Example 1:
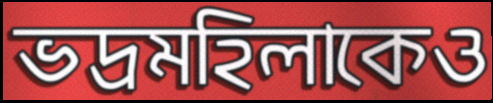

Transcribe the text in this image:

ভদ্রমহিলাকেও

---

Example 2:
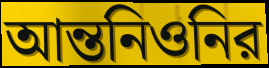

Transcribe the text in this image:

আন্তনিওনির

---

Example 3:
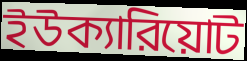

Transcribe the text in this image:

ইউক্যারিয়োট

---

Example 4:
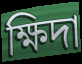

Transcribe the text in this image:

ক্ষিদা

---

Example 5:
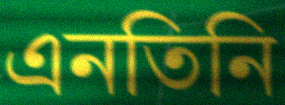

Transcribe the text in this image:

এনতিনি